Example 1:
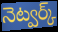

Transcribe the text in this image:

నెట్వర్క్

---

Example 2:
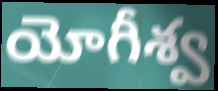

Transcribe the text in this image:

యోగీశ్వ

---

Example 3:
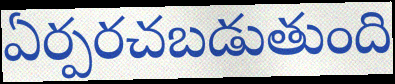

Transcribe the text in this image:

ఏర్పరచబడుతుంది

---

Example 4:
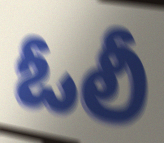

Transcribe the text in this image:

ఓలీ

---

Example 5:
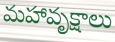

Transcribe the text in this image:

మహావృక్షాలు